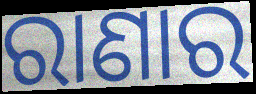
ରାଣାର